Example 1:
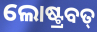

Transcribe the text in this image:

ଲୋଷ୍ଟ୍ରବତ୍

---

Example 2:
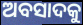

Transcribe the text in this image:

ଅବସାଦକୁ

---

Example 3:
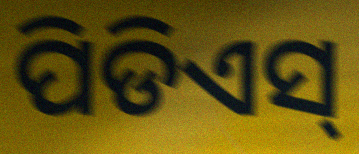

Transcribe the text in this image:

ପିଡିଏସ୍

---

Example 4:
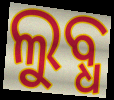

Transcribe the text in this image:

ଲୁବ୍ଧ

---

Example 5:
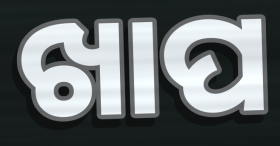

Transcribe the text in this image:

ଖାପ